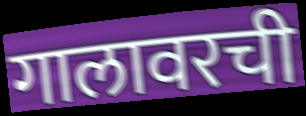
गालावरची